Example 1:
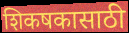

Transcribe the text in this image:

शिकषकासाठी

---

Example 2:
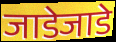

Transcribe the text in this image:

जाडेजाडे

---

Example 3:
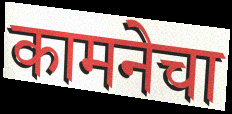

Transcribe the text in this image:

कामनेचा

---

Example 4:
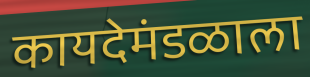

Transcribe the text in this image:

कायदेमंडळाला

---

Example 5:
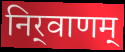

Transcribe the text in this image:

निर्वाणम्